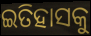
ଇତିହାସକୁ